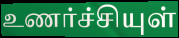
உணர்ச்சியுள்